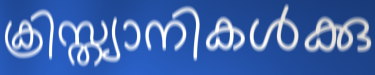
ക്രിസ്ത്യാനികൾക്കു